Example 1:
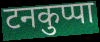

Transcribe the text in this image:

टनकुप्पा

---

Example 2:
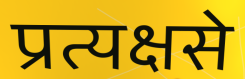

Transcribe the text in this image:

प्रत्यक्षसे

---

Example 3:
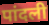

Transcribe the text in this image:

पांदली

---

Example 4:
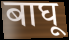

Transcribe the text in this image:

बाघू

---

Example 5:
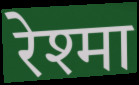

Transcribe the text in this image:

रेश्मा